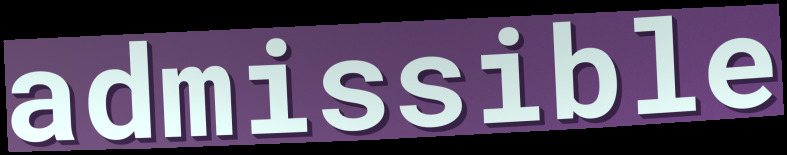
admissible